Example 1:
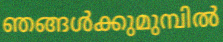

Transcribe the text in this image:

ഞങ്ങൾക്കുമുമ്പിൽ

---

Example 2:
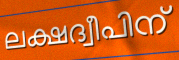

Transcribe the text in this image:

ലക്ഷദ്വീപിന്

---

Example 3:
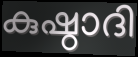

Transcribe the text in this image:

കുഷ്ഠാദി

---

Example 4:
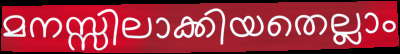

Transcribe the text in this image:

മനസ്സിലാക്കിയതെല്ലാം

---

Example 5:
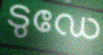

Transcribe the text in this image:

ടുഡേ